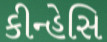
કીન્હેસિ